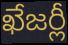
ఖేజర్లీ